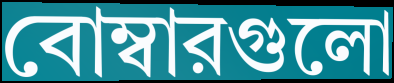
বোম্বারগুলো